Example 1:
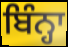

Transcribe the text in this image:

ਬਿੰਨ੍ਹਾ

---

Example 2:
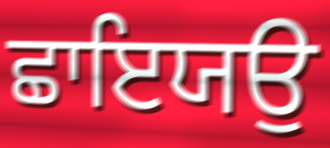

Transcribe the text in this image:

ਛਾਇਯਉ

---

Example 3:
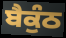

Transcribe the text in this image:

ਬੈਕੁੰਠ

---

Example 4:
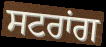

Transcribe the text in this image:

ਸਟਰਾਂਗ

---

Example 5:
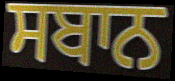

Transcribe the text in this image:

ਸਬਾਨ